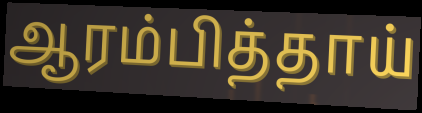
ஆரம்பித்தாய்